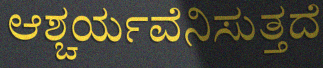
ಆಶ್ಚರ್ಯವೆನಿಸುತ್ತದೆ